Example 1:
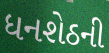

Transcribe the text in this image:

ધનશેઠની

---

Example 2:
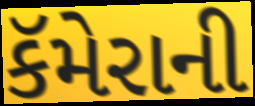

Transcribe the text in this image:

કૅમેરાની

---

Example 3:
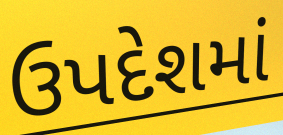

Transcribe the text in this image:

ઉપદેશમાં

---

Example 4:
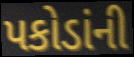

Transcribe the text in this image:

પકોડાંની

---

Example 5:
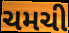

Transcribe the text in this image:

ચમચી